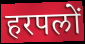
हरपलों